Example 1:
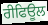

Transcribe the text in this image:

ਰੀਫਿਊਲ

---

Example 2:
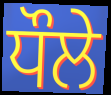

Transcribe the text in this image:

ਧੌਲੇ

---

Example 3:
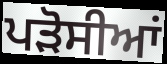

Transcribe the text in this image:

ਪੜੋਸੀਆਂ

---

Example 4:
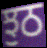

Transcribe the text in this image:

ਝੁਠ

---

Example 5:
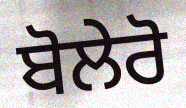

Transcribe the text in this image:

ਬੋਲੇਰੋ